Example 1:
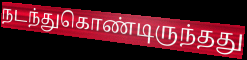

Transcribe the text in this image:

நடந்துகொண்டிருந்தது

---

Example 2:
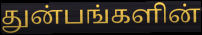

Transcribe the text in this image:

துன்பங்களின்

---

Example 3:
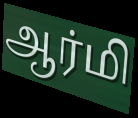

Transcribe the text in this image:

ஆர்மி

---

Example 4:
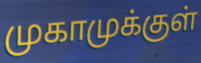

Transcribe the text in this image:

முகாமுக்குள்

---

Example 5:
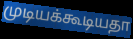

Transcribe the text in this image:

முடியக்கூடியதா